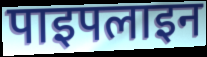
पाइपलाइन